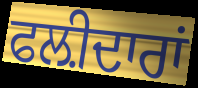
ਫਲ਼ੀਦਾਰਾਂ